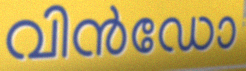
വിൻഡോ